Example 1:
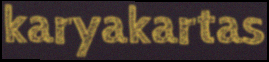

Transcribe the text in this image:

karyakartas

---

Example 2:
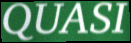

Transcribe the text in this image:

QUASI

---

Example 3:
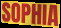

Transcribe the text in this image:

SOPHIA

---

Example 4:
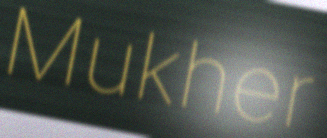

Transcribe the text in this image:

Mukher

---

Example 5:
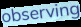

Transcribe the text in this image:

observing